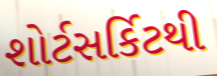
શોર્ટસર્કિટથી